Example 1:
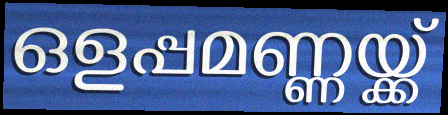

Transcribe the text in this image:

ഒളപ്പമണ്ണയ്ക്ക്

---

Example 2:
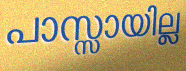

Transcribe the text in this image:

പാസ്സായില്ല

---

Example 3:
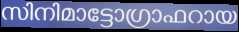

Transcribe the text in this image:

സിനിമാട്ടോഗ്രാഫറായ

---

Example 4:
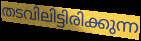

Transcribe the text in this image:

തടവിലിട്ടിരിക്കുന്ന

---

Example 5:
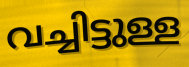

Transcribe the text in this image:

വച്ചിട്ടുള്ള